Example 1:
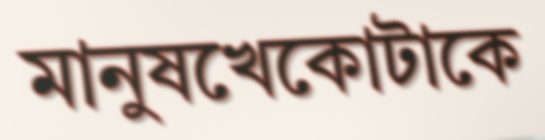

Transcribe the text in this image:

মানুষখেকোটাকে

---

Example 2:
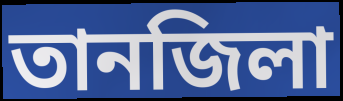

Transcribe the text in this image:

তানজিলা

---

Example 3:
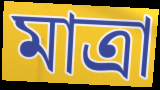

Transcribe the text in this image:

মাত্রা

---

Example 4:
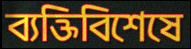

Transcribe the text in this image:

ব্যক্তিবিশেষে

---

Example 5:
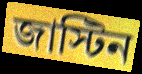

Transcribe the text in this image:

জাস্টিন